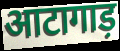
आटागाड़